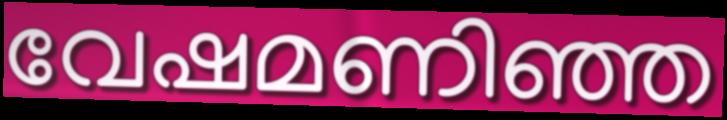
വേഷമണിഞ്ഞ